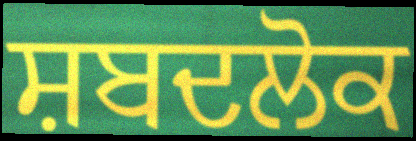
ਸ਼ਬਦਲੋਕ